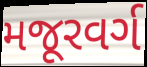
મજૂરવર્ગ